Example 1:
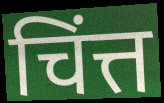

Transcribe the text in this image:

चिंत्त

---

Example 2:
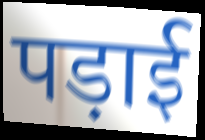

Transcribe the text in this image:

पड़ाई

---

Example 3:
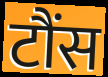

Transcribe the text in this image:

टौंस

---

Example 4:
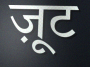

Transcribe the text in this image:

ज़ूट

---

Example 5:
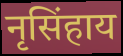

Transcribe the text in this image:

नृसिंहाय